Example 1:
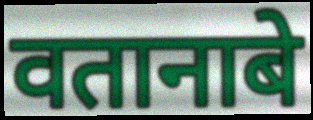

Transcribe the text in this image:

वतानाबे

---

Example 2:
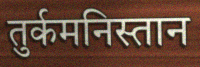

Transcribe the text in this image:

तुर्कमनिस्तान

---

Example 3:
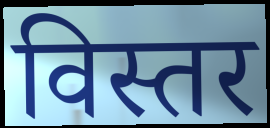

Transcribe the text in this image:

विस्तर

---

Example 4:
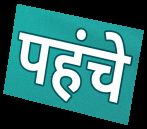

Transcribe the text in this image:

पहंचे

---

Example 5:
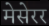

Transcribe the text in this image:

मेसेरर